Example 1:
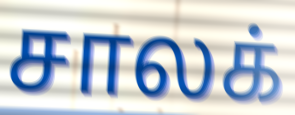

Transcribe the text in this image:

சாலக்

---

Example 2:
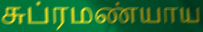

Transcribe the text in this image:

சுப்ரமண்யாய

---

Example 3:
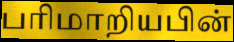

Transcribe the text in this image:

பரிமாறியபின்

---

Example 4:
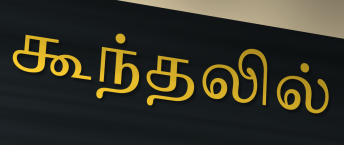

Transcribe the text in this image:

கூந்தலில்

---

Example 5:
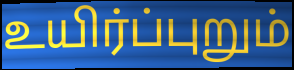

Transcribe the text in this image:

உயிர்ப்புறும்